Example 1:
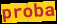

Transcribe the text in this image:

proba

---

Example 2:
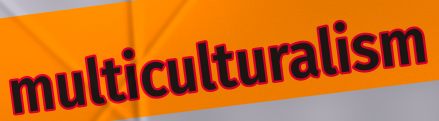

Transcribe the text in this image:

multiculturalism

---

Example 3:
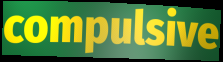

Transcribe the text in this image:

compulsive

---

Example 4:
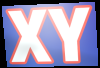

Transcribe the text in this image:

XY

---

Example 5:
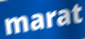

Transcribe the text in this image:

marat